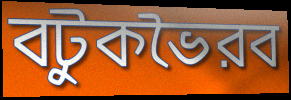
বটুকভৈরব